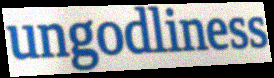
ungodliness